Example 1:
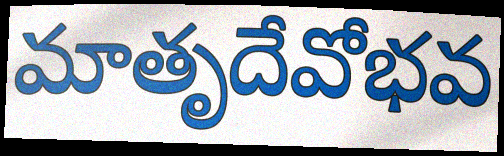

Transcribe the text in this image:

మాతృదేవోభవ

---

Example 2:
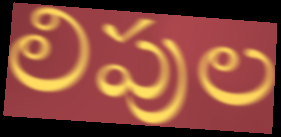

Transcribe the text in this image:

లిపుల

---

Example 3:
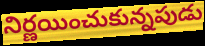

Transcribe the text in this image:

నిర్ణయించుకున్నపుడు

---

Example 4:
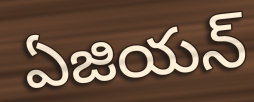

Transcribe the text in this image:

ఏజియన్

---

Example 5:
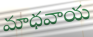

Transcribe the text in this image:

మాధవాయ